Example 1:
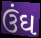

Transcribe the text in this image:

ઉંઘ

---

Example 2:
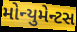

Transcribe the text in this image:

મોન્યુમેન્ટસ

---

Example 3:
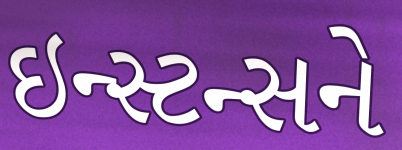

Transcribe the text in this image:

ઇન્સ્ટન્સને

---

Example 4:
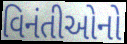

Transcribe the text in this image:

વિનંતીઓનો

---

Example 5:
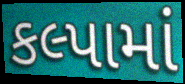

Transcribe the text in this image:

કલ્પામાં